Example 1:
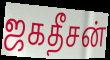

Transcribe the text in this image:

ஜகதீசன்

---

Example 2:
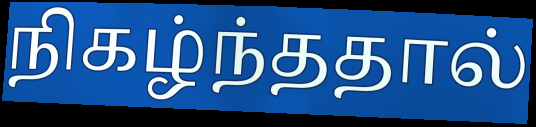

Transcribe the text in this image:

நிகழ்ந்ததால்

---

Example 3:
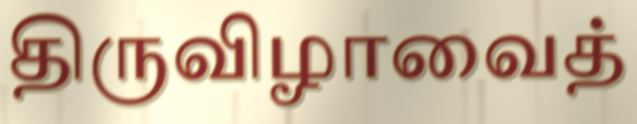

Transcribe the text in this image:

திருவிழாவைத்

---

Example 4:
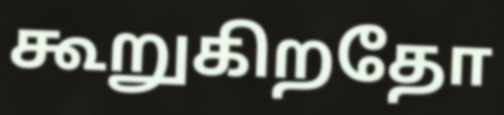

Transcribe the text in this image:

கூறுகிறதோ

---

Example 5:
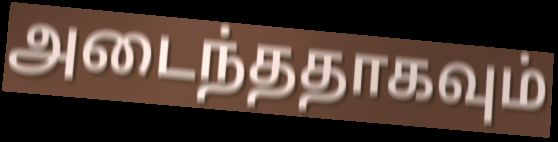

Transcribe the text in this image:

அடைந்ததாகவும்